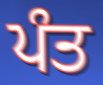
ਪੰਤ